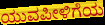
ಯುವಪೀಳಿಗೆಯ